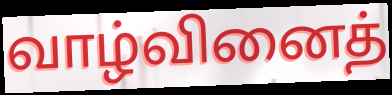
வாழ்வினைத்